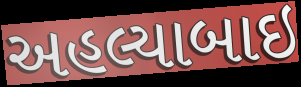
અહલ્યાબાઇ